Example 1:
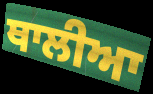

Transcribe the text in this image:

ਥਾਲੀਆ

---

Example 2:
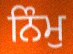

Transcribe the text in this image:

ਨਿੰਮੁ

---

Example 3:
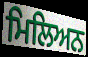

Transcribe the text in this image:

ਮਿਲਿਅਨ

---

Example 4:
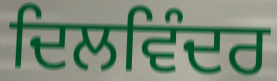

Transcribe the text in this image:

ਦਿਲਵਿੰਦਰ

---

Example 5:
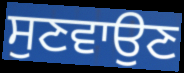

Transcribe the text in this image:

ਸੁਣਵਾਉਣ